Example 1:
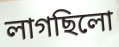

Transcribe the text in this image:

লাগছিলো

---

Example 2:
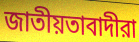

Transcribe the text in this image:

জাতীয়তাবাদীরা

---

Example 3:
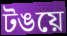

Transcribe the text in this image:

টঙয়ে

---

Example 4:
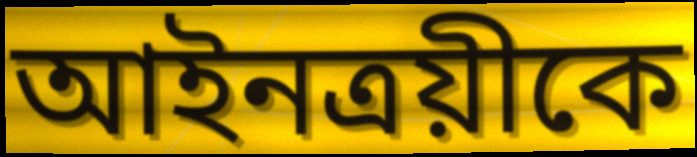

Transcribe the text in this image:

আইনত্রয়ীকে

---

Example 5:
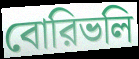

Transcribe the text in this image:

বোরিভলি